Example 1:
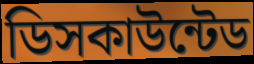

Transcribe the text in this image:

ডিসকাউন্টেড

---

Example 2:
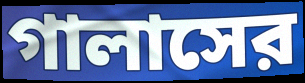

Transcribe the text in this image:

গালাসের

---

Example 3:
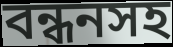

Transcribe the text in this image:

বন্ধনসহ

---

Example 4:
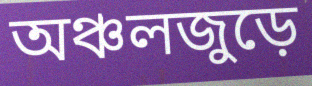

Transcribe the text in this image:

অঞ্চলজুড়ে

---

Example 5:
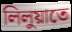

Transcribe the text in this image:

লিলুয়াতে